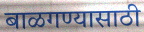
बाळगण्यासाठी